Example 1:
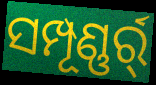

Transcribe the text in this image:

ସମ୍ପୂଣ୍ଣର୍ର୍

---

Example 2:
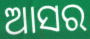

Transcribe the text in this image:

ଆସର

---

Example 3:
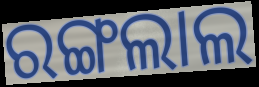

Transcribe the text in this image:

ରଙ୍ଗଲାଲ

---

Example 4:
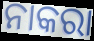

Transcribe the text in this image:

ନାକରା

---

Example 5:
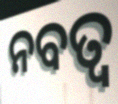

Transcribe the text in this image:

ନବତ୍ଵ